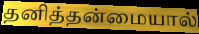
தனித்தன்மையால்